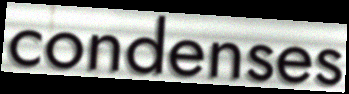
condenses